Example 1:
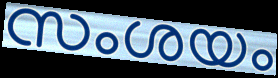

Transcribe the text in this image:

സംശയം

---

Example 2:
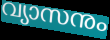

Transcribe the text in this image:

വ്യാസനും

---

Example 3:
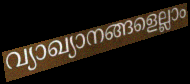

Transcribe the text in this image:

വ്യാഖ്യാനങ്ങളെല്ലാം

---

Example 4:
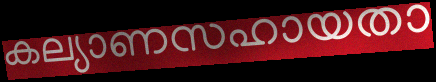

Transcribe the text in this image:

കല്യാണസഹായതാ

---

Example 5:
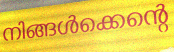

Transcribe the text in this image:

നിങ്ങൾക്കെന്റെ